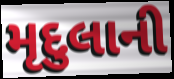
મૃદુલાની